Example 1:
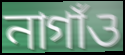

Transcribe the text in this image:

নাগাঁও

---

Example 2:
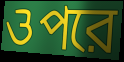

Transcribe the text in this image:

ওপরে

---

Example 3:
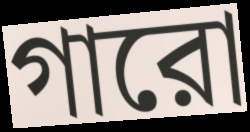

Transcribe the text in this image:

গারো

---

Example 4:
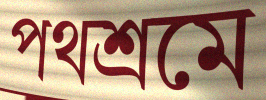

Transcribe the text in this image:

পথশ্রমে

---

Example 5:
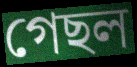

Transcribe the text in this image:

গেছল